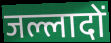
जल्लादों